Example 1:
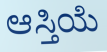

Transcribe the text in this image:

ಆಸ್ತಿಯೆ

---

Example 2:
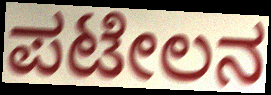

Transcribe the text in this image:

ಪಟೇಲನ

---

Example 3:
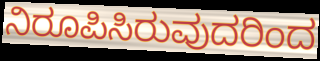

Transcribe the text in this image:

ನಿರೂಪಿಸಿರುವುದರಿಂದ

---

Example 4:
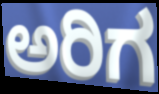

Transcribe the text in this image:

ಅರಿಗ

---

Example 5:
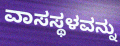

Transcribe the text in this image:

ವಾಸಸ್ಥಳವನ್ನು